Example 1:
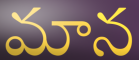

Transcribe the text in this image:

మాన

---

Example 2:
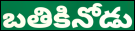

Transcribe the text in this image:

బతికినోడు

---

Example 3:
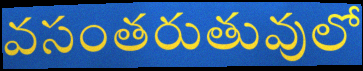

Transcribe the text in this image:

వసంతరుతువులో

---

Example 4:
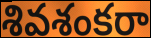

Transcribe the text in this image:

శివశంకరా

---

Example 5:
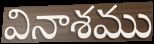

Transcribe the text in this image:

వినాశము